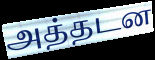
அத்தடன